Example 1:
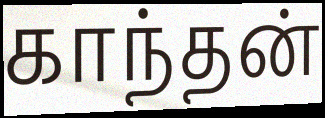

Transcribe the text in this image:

காந்தன்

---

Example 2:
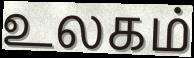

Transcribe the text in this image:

உலகம்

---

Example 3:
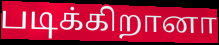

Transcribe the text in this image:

படிக்கிறானா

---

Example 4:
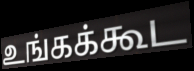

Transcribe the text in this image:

உங்கக்கூட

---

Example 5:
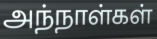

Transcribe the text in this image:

அந்நாள்கள்